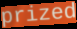
prized